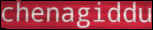
chenagiddu